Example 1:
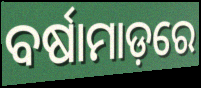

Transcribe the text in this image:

ବର୍ଷାମାଡ଼ରେ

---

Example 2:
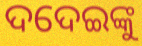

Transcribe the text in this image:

ଦଦେଇଙ୍କୁ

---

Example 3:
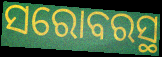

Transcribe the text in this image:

ସରୋବରସ୍ଥ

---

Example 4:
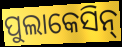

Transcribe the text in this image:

ପୁଲାକେସିନ୍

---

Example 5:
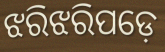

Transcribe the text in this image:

ଝରିଝରିପଡ଼େ